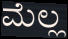
ಮೆಲ್ಲ